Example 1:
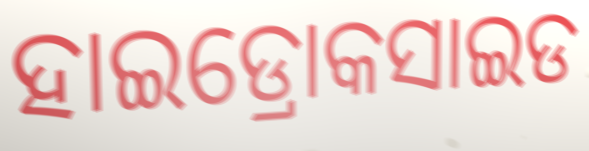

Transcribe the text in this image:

ହାଇଡ୍ରୋକସାଇଡ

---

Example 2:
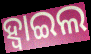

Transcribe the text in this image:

ହ୍ବାଇଲ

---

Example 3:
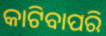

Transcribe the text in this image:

କାଟିବାପରି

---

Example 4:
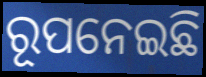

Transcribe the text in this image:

ରୂପନେଇଛି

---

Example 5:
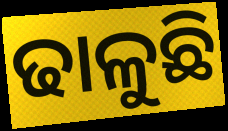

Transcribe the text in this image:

ଢାଳୁଛି